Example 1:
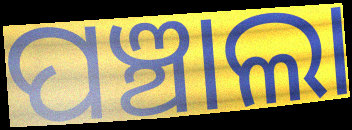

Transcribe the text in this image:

ପଞ୍ଚାଲା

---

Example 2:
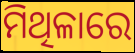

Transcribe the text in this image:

ମିଥିଳାରେ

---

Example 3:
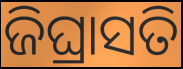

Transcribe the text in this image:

ଜିଘ୍ରାସତି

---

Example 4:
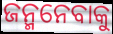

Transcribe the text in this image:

ଜନ୍ମନେବାକୁ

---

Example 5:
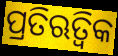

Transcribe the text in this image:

ପ୍ରତିଋତ୍ୱିକ